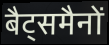
बैट्समैनों